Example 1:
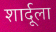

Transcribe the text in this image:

शार्दूला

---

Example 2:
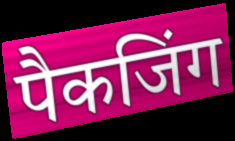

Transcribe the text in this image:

पैकजिंग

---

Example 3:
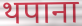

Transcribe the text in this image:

थपाना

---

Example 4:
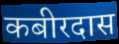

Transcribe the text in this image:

कबीरदास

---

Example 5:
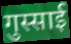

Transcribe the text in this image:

गुस्साई